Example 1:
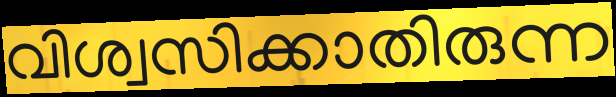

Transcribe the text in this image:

വിശ്വസിക്കാതിരുന്ന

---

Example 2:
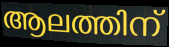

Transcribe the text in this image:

ആലത്തിന്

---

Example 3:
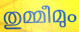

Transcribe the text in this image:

തുമ്മീമും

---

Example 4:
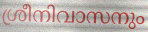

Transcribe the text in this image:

ശ്രീനിവാസനും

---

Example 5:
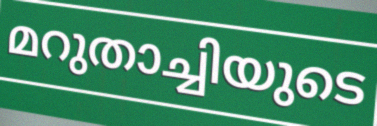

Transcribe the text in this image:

മറുതാച്ചിയുടെ